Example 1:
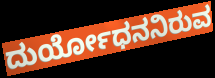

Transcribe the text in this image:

ದುರ್ಯೋಧನನಿರುವ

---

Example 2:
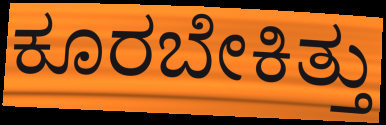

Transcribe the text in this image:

ಕೂರಬೇಕಿತ್ತು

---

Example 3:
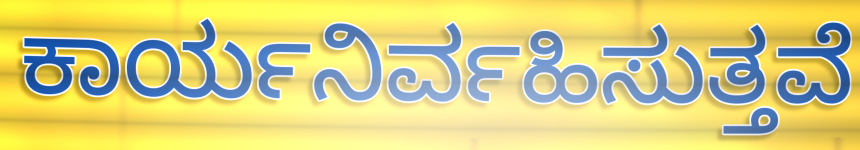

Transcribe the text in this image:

ಕಾರ್ಯನಿರ್ವಹಿಸುತ್ತವೆ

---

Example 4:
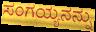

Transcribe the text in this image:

ಸಂಗಯ್ಯನನ್ನು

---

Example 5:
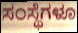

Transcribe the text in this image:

ಸಂಸ್ಥೆಗಳೂ